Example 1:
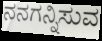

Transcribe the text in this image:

ನನಗನ್ನಿಸುವ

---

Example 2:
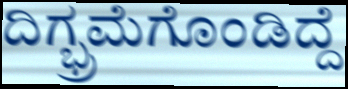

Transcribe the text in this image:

ದಿಗ್ಭ್ರಮೆಗೊಂಡಿದ್ದೆ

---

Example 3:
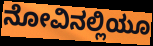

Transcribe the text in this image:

ನೋವಿನಲ್ಲಿಯೂ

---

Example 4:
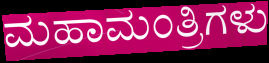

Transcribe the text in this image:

ಮಹಾಮಂತ್ರಿಗಳು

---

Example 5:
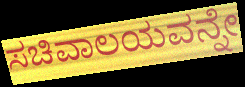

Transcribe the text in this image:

ಸಚಿವಾಲಯವನ್ನೇ